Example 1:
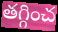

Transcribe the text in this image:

తగ్గించ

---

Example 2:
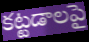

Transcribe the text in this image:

కట్టడాలపై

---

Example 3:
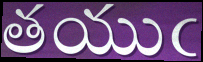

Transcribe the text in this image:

తయుఁ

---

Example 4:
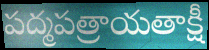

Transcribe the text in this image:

పద్మపత్రాయతాక్షీ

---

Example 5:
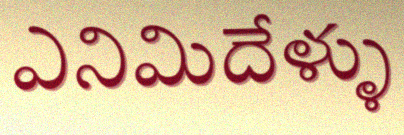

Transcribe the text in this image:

ఎనిమిదేళ్ళు